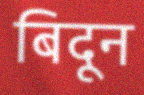
बिदून